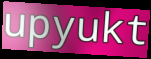
upyukt